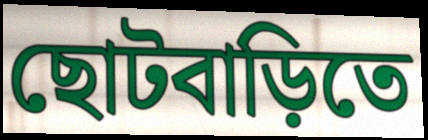
ছোটবাড়িতে